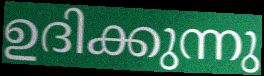
ഉദിക്കുന്നു